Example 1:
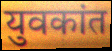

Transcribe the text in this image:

युवकांत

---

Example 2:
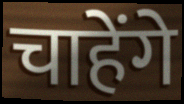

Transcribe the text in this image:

चाहेंगे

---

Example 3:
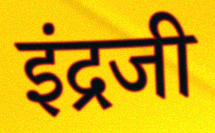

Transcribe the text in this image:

इंद्रजी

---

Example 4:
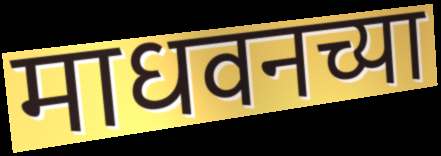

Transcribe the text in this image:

माधवनच्या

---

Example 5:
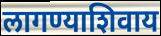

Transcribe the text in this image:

लागण्याशिवाय